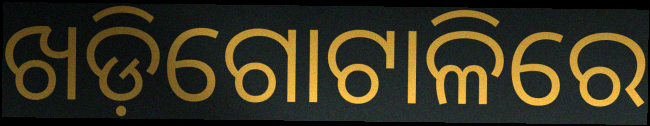
ଖଡ଼ିଗୋଟାଳିରେ